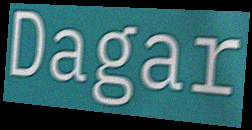
Dagar